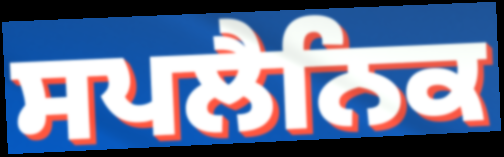
ਸਪਲੈਨਿਕ